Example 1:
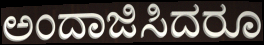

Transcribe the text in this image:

ಅಂದಾಜಿಸಿದರೂ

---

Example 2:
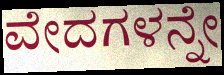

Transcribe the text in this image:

ವೇದಗಳನ್ನೇ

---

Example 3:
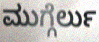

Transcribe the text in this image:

ಮುಗ್ಗೆರ್ಲು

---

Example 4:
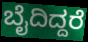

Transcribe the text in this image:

ಬೈದಿದ್ದರೆ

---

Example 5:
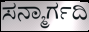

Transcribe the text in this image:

ಸನ್ಮಾರ್ಗದಿ